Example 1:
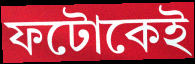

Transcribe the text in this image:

ফটোকেই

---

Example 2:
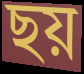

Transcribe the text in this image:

ছয়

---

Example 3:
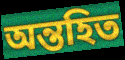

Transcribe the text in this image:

অন্তহিত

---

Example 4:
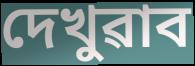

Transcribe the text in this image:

দেখুৱাব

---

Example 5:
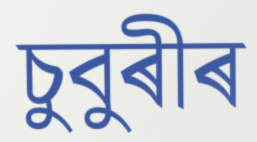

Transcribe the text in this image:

চুবুৰীৰ